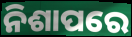
ନିଶାପରେ